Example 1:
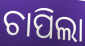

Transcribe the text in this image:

ଚାପିଲା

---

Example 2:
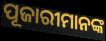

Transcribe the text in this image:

ପୂଜାରୀମାନଙ୍କ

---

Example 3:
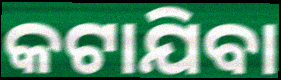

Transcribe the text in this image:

କଟାଯିବା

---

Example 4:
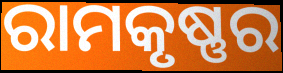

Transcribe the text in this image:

ରାମକୃଷ୍ଣର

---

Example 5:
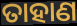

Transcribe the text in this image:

ତାହାଣ